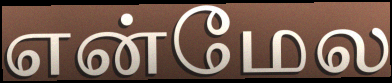
என்மேல